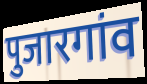
पुजारगांव